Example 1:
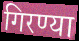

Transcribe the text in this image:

गिरण्या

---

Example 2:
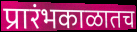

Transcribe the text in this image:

प्रारंभकाळातच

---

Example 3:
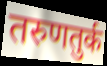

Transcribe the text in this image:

तरुणतुर्क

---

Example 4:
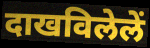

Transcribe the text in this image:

दाखविलेलें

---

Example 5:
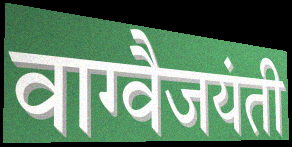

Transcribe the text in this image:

वाग्वैजयंती